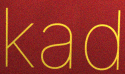
kad